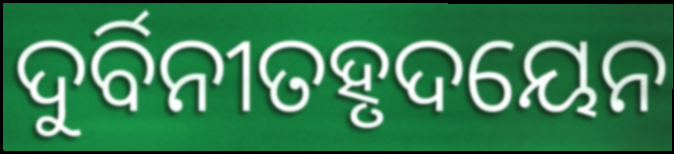
ଦୁର୍ବିନୀତହୃଦୟେନ